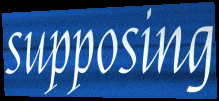
supposing